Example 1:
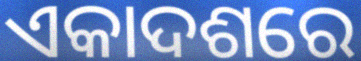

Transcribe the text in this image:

ଏକାଦଶରେ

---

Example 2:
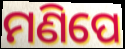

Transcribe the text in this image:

ମଣିପେ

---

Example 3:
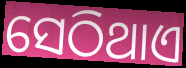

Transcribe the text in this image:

ସେଠିଥାଏ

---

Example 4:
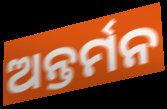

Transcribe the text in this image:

ଅନ୍ତର୍ମନ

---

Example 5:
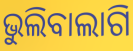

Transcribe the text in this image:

ଭୁଲିବାଲାଗି